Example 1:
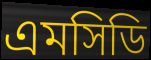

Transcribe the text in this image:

এমসিডি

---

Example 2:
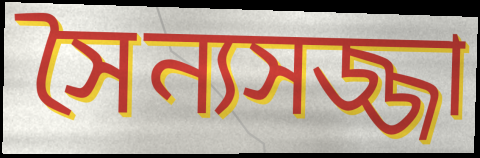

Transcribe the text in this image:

সৈন্যসজ্জা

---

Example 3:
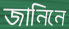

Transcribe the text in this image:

জানিনে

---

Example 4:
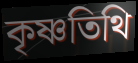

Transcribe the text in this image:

কৃষ্ণতিথি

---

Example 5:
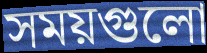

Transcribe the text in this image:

সময়গুলো